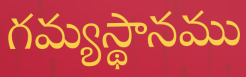
గమ్యస్థానము